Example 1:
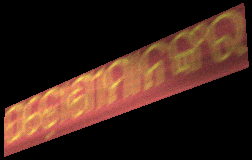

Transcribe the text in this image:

ପଡ଼ୋଶୀମାନଙ୍କର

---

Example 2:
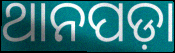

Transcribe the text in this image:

ଥାନପଡ଼ା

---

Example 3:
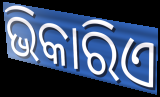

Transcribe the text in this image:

ଭିକାରିଏ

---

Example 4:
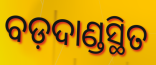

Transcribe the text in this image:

ବଡ଼ଦାଣ୍ଡସ୍ଥିତ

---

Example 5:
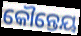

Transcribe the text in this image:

କୌନ୍ତେୟ